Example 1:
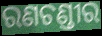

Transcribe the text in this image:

ରଣଚଣ୍ଡୀର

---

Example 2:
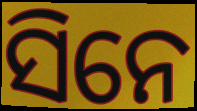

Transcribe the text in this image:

ସିନେ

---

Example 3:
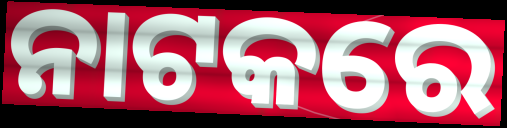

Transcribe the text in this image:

ନାଟକରେ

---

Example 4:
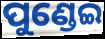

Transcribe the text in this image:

ପୁଣ୍ଡେଇ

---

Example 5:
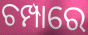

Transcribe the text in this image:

ଚମ୍ପାରେ